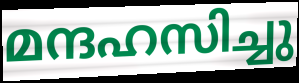
മന്ദഹസിച്ചു